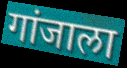
गांजाला